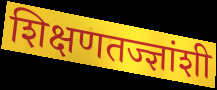
शिक्षणतज्ज्ञांशी